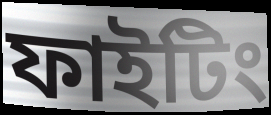
ফাইটিং